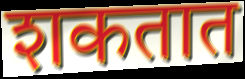
शकतात